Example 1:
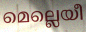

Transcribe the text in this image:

മെല്ലെയീ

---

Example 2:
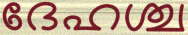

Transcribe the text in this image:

ദേഹശ്ച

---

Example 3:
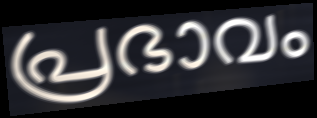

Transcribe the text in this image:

പ്രഭാവം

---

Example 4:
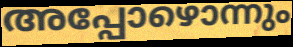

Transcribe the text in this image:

അപ്പോഴൊന്നും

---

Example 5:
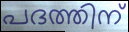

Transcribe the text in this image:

പദത്തിന്